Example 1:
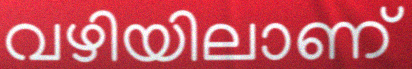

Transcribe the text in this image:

വഴിയിലാണ്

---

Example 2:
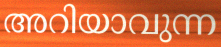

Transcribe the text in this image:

അറിയാവുന്ന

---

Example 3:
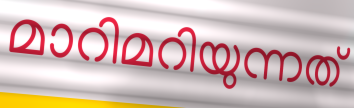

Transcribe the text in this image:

മാറിമറിയുന്നത്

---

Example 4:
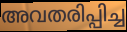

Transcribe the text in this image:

അവതരിപ്പിച്ച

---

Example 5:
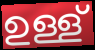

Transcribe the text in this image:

ഉള്ള്